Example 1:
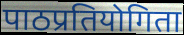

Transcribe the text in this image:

पाठप्रतियोगिता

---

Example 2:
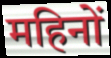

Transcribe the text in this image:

महिनों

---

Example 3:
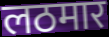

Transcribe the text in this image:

लठमार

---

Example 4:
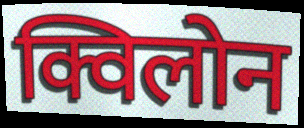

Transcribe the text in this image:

क्विलोन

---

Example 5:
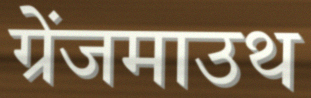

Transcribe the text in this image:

ग्रेंजमाउथ